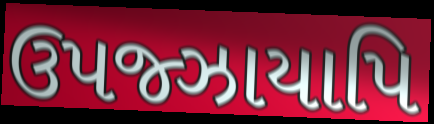
ઉપજ્ઝાયાપિ